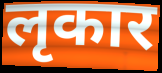
लृकार